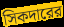
সিকদারের